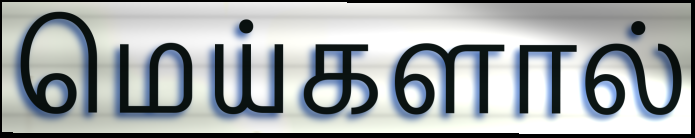
மெய்களால்